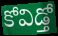
కోవిడ్తో